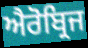
ਐਰੋਬ੍ਰਿਜ